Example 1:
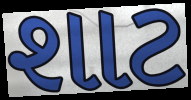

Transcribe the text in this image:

શાટ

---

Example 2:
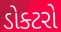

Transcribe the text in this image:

ડોક્ટરો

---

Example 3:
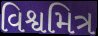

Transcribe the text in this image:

વિશ્વમિત્ર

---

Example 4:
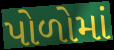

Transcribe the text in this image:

પોળોમાં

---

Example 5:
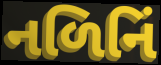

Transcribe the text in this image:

નળિનિં